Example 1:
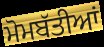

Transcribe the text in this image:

ਮੋਮਬੱਤੀਆਂ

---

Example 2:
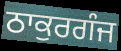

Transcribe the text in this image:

ਠਾਕੁਰਗੰਜ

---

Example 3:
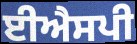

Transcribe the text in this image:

ਈਐਸਪੀ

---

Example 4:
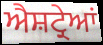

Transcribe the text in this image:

ਐਸ਼ਟ੍ਰੇਆਂ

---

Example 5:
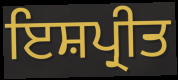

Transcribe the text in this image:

ਇਸ਼ਪ੍ਰੀਤ